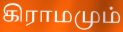
கிராமமும்